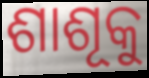
ଶାଶୂକୁ